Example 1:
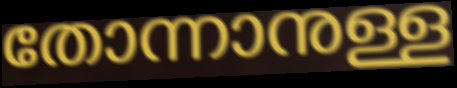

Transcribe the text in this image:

തോന്നാനുള്ള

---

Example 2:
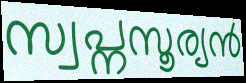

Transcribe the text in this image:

സ്വപ്നസൂര്യൻ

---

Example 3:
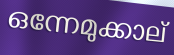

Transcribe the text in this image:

ഒന്നേമുക്കാല്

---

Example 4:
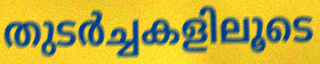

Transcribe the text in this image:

തുടർച്ചകളിലൂടെ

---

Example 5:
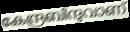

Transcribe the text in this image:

കേന്ദ്രബിന്ദുവാണ്